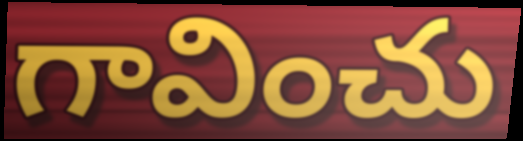
గావించు